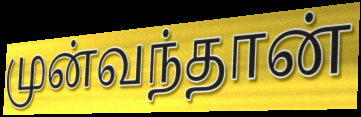
முன்வந்தான்